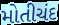
મોતીચંદ